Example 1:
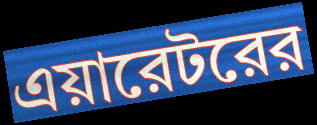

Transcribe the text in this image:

এয়ারেটরের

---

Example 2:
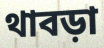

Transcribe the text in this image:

থাবড়া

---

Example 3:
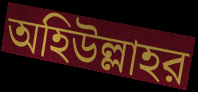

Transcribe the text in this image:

অহিউল্লাহর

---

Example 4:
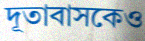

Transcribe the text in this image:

দূতাবাসকেও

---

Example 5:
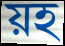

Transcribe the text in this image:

য়হ